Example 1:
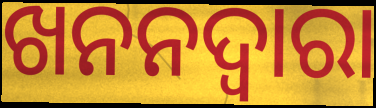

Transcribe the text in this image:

ଖନନଦ୍ୱାରା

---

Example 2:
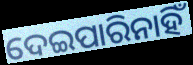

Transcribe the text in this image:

ଦେଇପାରିନାହିଁ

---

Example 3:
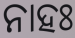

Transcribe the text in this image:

ନାହଃ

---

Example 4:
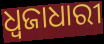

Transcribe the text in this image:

ଧ୍ବଜାଧାରୀ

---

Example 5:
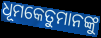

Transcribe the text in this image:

ଧୂମକେତୁମାନଙ୍କୁ